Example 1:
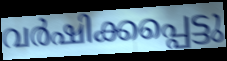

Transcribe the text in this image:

വർഷിക്കപ്പെട്ടു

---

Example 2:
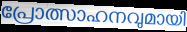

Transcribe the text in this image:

പ്രോത്സാഹനവുമായി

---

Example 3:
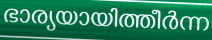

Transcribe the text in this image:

ഭാര്യയായിത്തീർന്ന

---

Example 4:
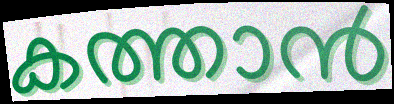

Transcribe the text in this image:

കത്താൻ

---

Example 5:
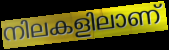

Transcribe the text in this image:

നിലകളിലാണ്